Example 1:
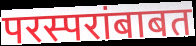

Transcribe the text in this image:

परस्परांबाबत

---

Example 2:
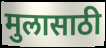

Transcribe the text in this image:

मुलासाठी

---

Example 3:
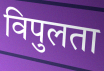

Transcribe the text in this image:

विपुलता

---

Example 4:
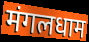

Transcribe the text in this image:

मंगलधाम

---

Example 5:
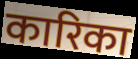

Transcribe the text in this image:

कारिका